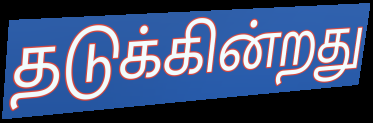
தடுக்கின்றது